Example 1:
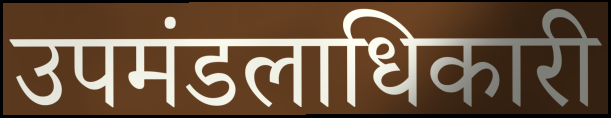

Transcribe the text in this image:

उपमंडलाधिकारी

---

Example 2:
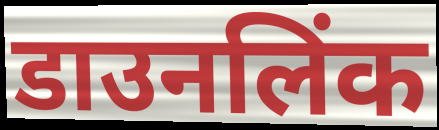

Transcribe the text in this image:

डाउनलिंक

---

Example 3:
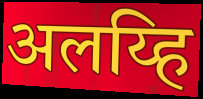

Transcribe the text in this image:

अलय्हि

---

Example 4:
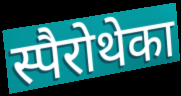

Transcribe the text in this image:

स्पैरोथेका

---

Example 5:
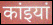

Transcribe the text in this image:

कांइयां